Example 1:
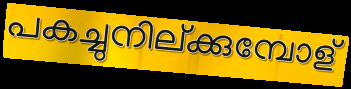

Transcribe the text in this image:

പകച്ചുനില്ക്കുമ്പോള്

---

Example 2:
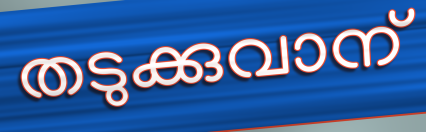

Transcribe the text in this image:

തടുക്കുവാന്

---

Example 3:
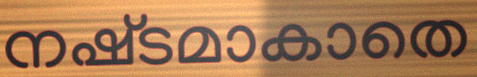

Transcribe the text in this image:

നഷ്‌ടമാകാതെ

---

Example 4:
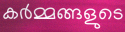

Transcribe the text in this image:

കർമ്മങ്ങളുടെ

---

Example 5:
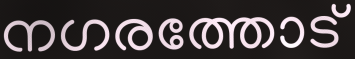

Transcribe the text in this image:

നഗരത്തോട്